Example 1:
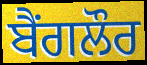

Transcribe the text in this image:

ਬੈਂਗਲੌਰ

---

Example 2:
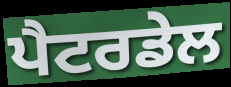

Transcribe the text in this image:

ਪੈਟਰਡੇਲ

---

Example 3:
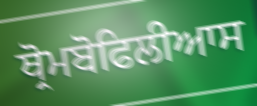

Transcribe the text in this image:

ਥ੍ਰੋਮਬੋਫਿਲੀਆਸ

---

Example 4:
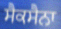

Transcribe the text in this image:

ਸੈਕਸੈਨਾ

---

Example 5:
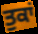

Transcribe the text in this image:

ਤੁਕਾਂ